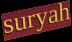
suryah